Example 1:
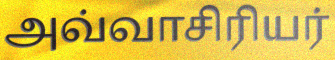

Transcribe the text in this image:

அவ்வாசிரியர்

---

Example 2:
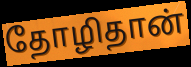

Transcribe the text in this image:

தோழிதான்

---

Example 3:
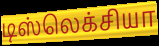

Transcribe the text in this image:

டிஸ்லெக்சியா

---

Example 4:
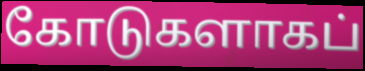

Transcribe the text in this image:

கோடுகளாகப்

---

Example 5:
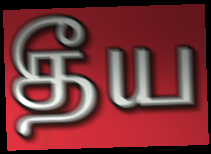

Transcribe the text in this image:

தீய